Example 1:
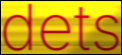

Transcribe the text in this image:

dets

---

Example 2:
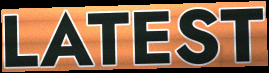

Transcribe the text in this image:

LATEST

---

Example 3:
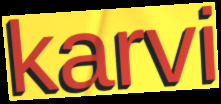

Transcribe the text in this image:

karvi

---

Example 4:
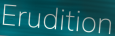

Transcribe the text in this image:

Erudition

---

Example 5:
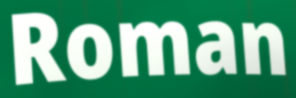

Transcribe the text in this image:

Roman